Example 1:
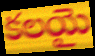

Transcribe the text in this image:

కలయై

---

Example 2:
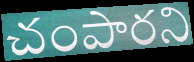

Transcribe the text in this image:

చంపారని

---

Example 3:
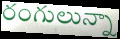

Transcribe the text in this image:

రంగులున్నా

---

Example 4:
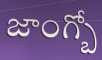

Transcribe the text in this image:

జాంగ్బో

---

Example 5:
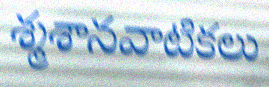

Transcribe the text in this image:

శ్మశానవాటికలు